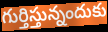
గుర్తిస్తున్నందుకు